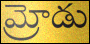
మ్రోడు